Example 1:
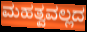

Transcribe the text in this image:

ಮಹತ್ವವಲ್ಲದ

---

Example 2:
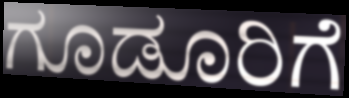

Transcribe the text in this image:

ಗೂಡೂರಿಗೆ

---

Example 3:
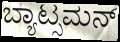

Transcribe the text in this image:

ಬ್ಯಾಟ್ಸಮನ್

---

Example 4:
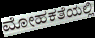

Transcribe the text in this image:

ಮೋಹಕತೆಯಲ್ಲಿ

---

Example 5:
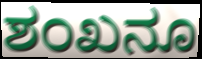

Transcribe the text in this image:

ಶಂಖನೂ